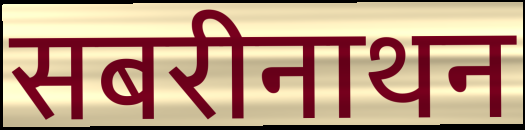
सबरीनाथन